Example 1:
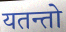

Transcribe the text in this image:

यतन्तो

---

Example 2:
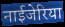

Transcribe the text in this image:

नाईजेरिया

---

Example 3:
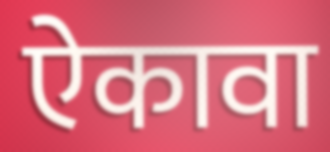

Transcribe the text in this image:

ऐकावा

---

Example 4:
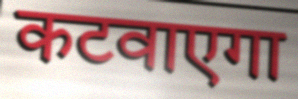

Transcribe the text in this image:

कटवाएगा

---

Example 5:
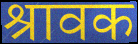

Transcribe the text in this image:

श्रावक